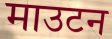
माउटन